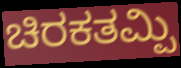
ಚಿರಕತಮ್ಪಿ